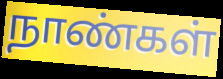
நாண்கள்